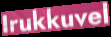
Irukkuvel